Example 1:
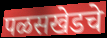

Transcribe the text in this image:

पळसखेडचे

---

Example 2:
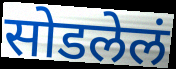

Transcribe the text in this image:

सोडलेलं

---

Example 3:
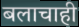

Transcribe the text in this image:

बलाचाही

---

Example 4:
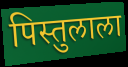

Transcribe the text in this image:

पिस्तुलाला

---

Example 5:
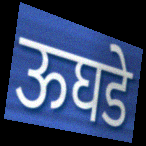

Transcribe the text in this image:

ऊघडे